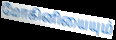
மோகினியையும்